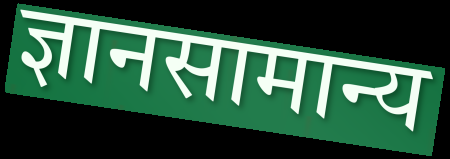
ज्ञानसामान्य